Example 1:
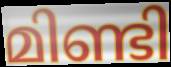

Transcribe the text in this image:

മിണ്ടി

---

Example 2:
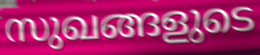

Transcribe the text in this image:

സുഖങ്ങളുടെ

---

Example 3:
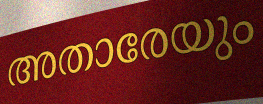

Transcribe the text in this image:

അതാരേയും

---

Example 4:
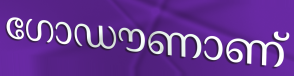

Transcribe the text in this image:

ഗോഡൗണാണ്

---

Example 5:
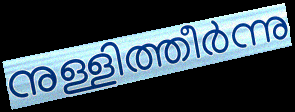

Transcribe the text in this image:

നുള്ളിത്തീർന്നു